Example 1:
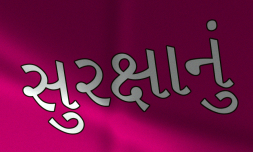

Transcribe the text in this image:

સુરક્ષાનું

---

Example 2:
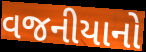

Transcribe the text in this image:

વજનીયાનો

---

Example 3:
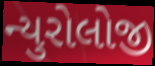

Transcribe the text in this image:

ન્યુરોલોજી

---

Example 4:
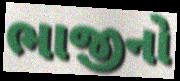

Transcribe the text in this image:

ભાજીનો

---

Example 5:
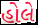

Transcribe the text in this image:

હોલે